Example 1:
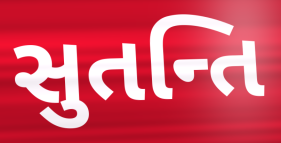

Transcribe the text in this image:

સુતન્તિ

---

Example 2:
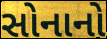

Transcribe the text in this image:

સોનાનો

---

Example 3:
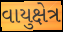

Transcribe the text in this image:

વાયુક્ષેત્ર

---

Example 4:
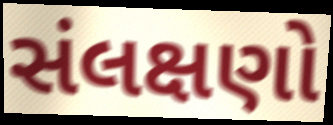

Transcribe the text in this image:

સંલક્ષણો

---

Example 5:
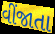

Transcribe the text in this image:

વીંજાતા